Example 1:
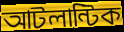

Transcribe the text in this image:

আটলান্টিক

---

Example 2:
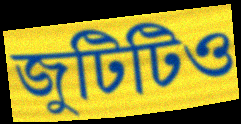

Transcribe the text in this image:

জুটিটিও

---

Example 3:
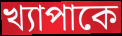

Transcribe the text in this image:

খ্যাপাকে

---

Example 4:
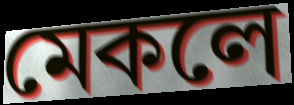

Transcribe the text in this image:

মেকলে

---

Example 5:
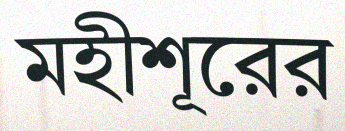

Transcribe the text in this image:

মহীশূরের